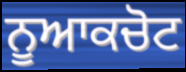
ਨੂਆਕਚੋਟ